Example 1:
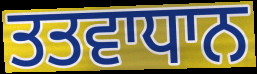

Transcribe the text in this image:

ਤਤਵਾਧਾਨ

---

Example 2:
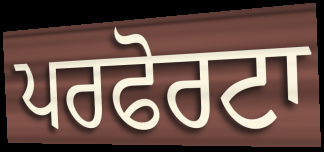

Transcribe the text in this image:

ਪਰਫੋਰਟਾ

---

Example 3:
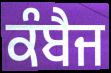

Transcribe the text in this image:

ਕੰਬੈਜ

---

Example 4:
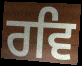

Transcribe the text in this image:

ਰਵਿ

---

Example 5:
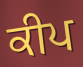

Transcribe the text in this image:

ਕੀਪ